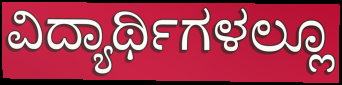
ವಿದ್ಯಾರ್ಥಿಗಳಲ್ಲೂ